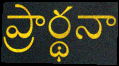
ప్రార్థనా